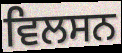
ਵਿਲਸਨ